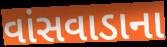
વાંસવાડાના